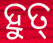
ହୁତ୍